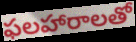
ఫలహారాలతో